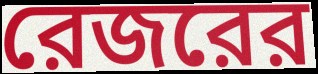
রেজরের